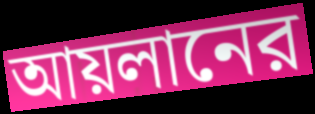
আয়লানের